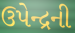
ઉપેન્દ્રની